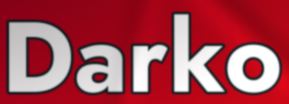
Darko